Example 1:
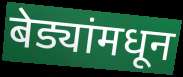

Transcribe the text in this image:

बेड्यांमधून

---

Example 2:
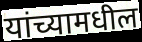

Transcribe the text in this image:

यांच्यामधील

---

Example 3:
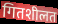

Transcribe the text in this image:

गितशीलत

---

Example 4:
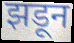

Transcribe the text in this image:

झडून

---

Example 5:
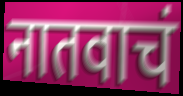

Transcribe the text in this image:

नातवाचं